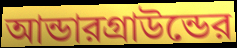
আন্ডারগ্রাউন্ডের